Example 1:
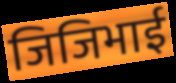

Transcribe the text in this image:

जिजिभाई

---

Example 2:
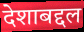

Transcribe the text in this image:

देशाबद्दल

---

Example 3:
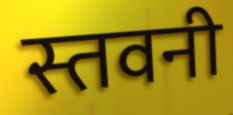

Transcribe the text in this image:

स्तवनी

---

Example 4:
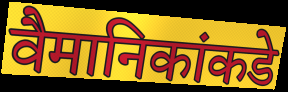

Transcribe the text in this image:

वैमानिकांकडे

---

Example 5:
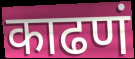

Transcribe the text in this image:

काढणं